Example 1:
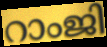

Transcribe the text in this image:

റാംജി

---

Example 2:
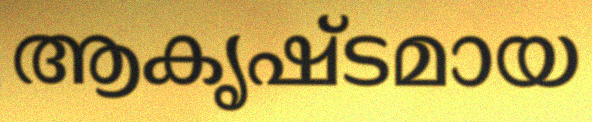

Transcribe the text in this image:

ആകൃഷ്ടമായ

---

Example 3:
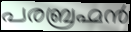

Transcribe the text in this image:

പരബ്രഹ്മൻ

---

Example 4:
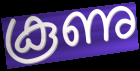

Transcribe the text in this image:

കൂണു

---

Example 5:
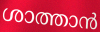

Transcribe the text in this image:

ശാത്താൻ